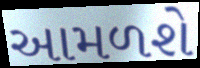
આમળશે